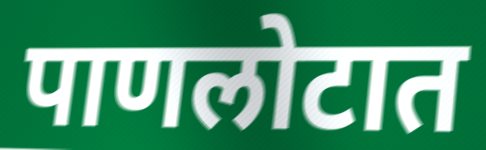
पाणलोटात